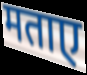
मताए